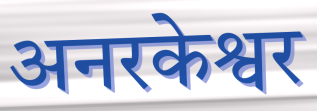
अनरकेश्वर